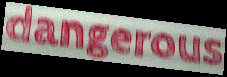
dangerous